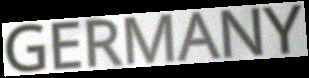
GERMANY